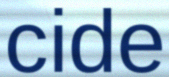
cide